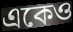
একেও